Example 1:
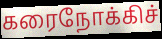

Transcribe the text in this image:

கரைநோக்கிச்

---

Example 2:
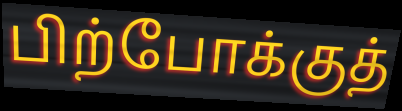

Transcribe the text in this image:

பிற்போக்குத்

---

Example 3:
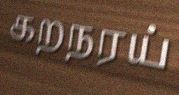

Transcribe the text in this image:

கறநரய்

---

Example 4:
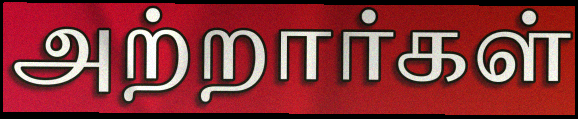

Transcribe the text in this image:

அற்றார்கள்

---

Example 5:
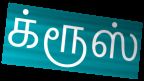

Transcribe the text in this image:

க்ரூஸ்